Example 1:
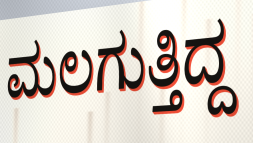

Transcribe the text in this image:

ಮಲಗುತ್ತಿದ್ದ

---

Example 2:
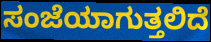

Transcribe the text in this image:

ಸಂಜೆಯಾಗುತ್ತಲಿದೆ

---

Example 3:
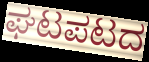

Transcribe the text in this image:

ಘಟಪಟದ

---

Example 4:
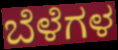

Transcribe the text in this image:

ಬೆಳೆಗಳ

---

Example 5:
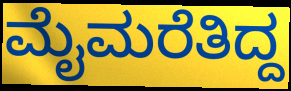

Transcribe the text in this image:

ಮೈಮರೆತಿದ್ದ